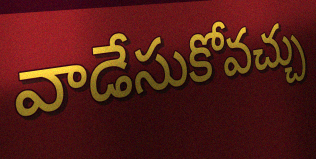
వాడేసుకోవచ్చు